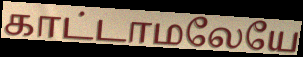
காட்டாமலேயே